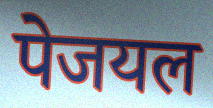
पेजयल